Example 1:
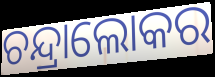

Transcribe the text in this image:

ଚନ୍ଦ୍ରାଲୋକର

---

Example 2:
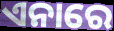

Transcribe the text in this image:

ଏନାରେ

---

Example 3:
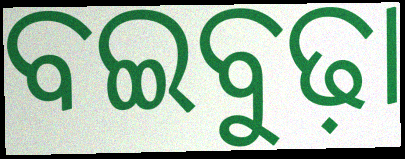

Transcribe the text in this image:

ବଇବୁଢ଼ା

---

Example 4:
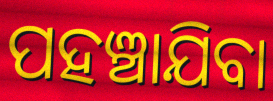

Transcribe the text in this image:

ପହଞ୍ଚାଯିବା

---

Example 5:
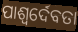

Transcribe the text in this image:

ପାଶ୍ୱର୍ଦେବତା